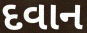
દવાન